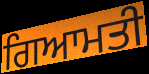
ਗਿਆਮਤੀ